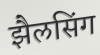
झैलसिंग